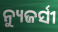
ନ୍ୟୁଜର୍ସୀ